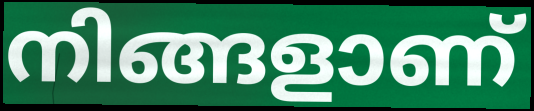
നിങ്ങളാണ്